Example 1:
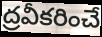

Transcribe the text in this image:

ద్రవీకరించే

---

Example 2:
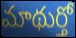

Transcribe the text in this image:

మాథుర్తో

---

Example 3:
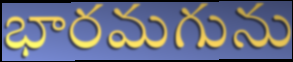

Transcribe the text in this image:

భారమగును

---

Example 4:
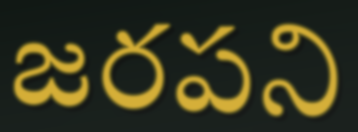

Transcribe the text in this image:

జరపని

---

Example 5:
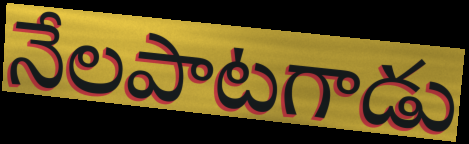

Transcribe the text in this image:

నేలపాటగాడు